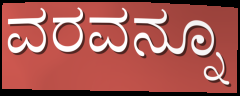
ವರವನ್ನೂ